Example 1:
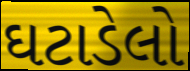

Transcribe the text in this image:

ઘટાડેલો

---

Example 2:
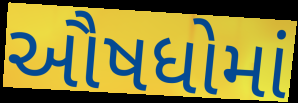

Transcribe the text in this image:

ઔષધોમાં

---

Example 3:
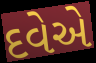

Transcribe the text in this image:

દવેએ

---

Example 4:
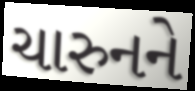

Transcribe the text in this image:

ચારુનને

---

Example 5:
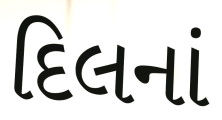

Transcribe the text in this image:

દિલનાં